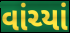
વાંચ્યાં